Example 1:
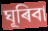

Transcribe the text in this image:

ঘূৰিবা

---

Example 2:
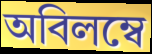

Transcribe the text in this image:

অবিলম্বে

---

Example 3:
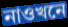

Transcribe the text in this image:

নাওখনে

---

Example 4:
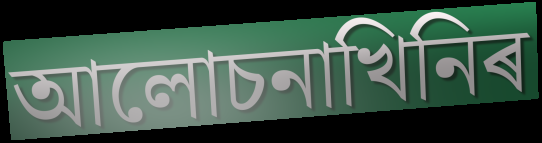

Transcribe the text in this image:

আলোচনাখিনিৰ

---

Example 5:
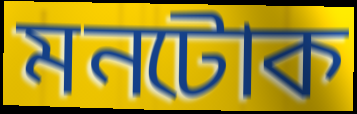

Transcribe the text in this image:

মনটোক